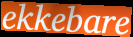
ekkebare